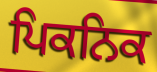
ਪਿਕਨਿਕ